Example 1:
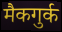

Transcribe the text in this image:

मैकगुर्क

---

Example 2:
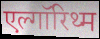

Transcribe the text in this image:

एल्गॉरिथ्म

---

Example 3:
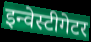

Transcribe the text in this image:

इन्वेस्टीगेटर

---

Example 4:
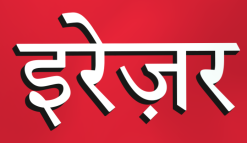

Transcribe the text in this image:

इरेज़र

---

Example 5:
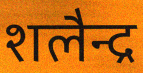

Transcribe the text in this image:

शलैन्द्र